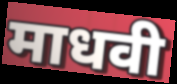
माधवी